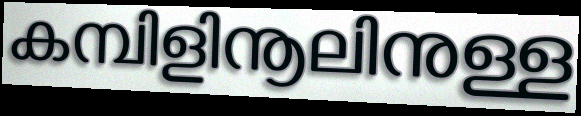
കമ്പിളിനൂലിനുള്ള